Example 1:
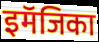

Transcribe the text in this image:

इमॅजिका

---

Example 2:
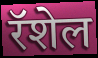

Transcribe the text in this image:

रॅशेल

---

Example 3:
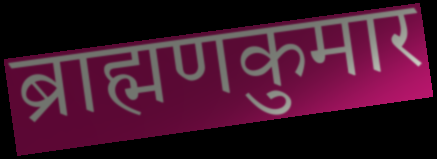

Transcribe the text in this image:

ब्राह्मणकुमार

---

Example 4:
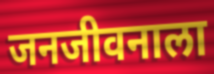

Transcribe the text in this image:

जनजीवनाला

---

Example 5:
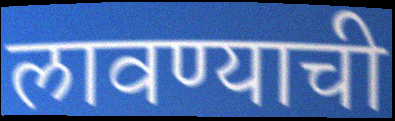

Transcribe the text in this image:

लावण्याची